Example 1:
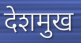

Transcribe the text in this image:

देशमुख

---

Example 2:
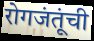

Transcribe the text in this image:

रोगजंतूंची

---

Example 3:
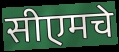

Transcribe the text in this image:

सीएमचे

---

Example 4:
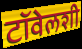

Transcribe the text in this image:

टॉवेलशी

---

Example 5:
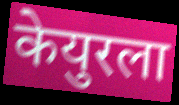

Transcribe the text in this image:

केयुरला